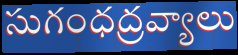
సుగంధద్రవ్యాలు